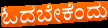
ಓದಬೇಕೆಂದು